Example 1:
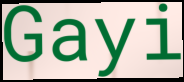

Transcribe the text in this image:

Gayi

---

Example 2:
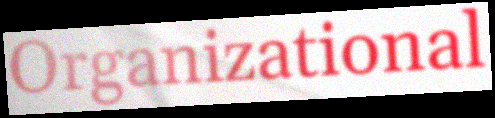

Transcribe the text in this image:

Organizational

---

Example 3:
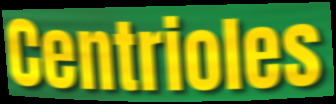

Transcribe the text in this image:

Centrioles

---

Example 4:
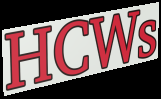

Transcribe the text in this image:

HCWs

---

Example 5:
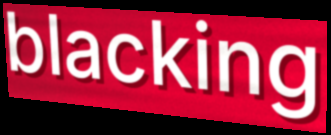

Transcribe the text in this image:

blacking